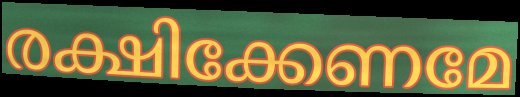
രക്ഷിക്കേണമേ